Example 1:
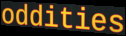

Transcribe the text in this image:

oddities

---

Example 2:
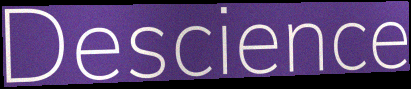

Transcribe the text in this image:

Descience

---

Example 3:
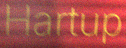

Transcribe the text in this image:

Hartup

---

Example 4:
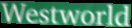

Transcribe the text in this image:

Westworld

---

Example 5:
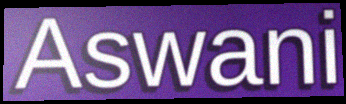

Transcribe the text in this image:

Aswani